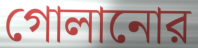
গোলানোর